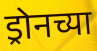
ड्रोनच्या